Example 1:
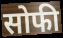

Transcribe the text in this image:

सोफी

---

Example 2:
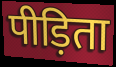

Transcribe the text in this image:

पीड़िता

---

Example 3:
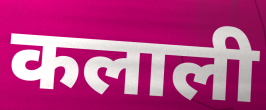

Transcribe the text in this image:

कलाली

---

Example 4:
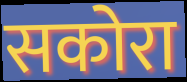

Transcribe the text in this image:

सकोरा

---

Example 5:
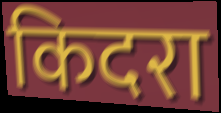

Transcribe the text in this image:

किदरा